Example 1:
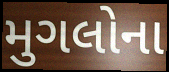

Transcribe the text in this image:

મુગલોના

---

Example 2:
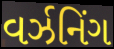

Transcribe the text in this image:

વર્ઝનિંગ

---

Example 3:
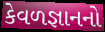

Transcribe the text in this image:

કેવળજ્ઞાનનો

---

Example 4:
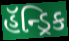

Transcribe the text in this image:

હૅન્ડ્રિક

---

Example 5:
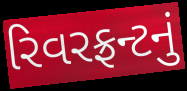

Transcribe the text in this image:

રિવરફ્રન્ટનું